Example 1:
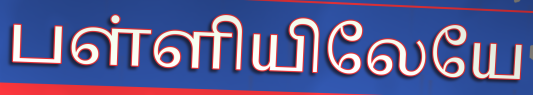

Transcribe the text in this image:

பள்ளியிலேயே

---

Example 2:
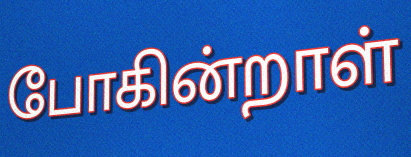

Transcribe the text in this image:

போகின்றாள்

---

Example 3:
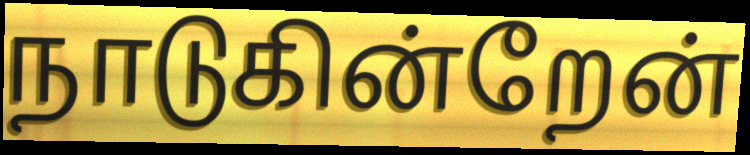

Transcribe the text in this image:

நாடுகின்றேன்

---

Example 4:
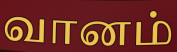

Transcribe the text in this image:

வானம்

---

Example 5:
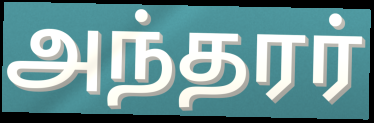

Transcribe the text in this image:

அந்தரர்